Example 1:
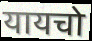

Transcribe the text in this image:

यायचो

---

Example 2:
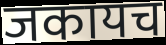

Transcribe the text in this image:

जकायच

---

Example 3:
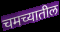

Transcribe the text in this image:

चमच्यातील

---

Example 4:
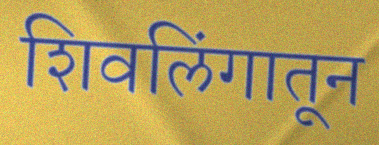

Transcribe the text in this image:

शिवलिंगातून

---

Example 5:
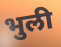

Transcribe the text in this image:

भुली